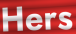
Hers